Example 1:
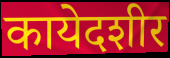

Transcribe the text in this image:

कायेदशीर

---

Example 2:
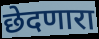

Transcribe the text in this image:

छेदणारा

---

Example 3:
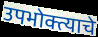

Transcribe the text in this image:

उपभोक्त्याचे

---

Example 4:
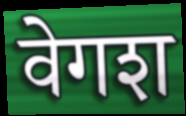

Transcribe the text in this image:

वेगश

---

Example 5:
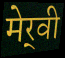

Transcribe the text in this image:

मेर्वी